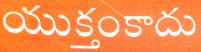
యుక్తంకాదు